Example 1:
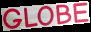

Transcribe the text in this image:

GLOBE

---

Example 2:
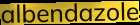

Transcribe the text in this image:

albendazole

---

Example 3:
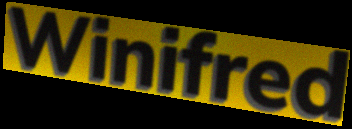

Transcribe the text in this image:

Winifred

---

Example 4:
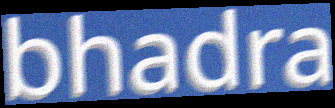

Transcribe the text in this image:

bhadra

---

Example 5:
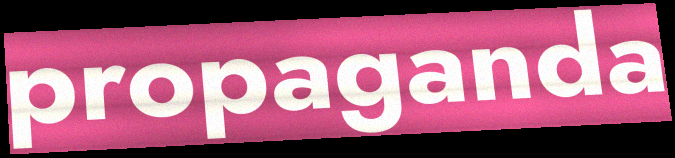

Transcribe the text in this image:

propaganda